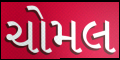
ચોમલ